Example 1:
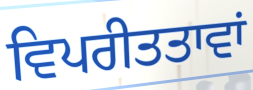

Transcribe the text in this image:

ਵਿਪਰੀਤਤਾਵਾਂ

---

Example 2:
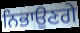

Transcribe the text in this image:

ਨਿਭਾਉਣਗੇ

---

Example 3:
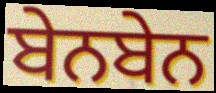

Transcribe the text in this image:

ਬੇਨਬੇਨ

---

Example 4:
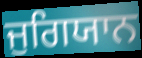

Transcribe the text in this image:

ਜੁਗਿਯਾਨ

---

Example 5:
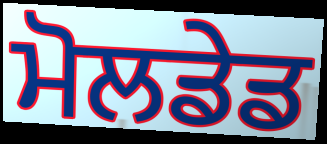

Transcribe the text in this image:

ਮੋਲਡੇਡ